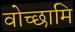
वोच्छामि